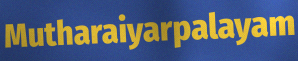
Mutharaiyarpalayam